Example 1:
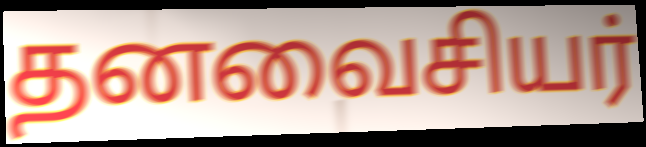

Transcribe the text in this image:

தனவைசியர்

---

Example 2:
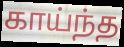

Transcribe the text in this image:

காய்ந்த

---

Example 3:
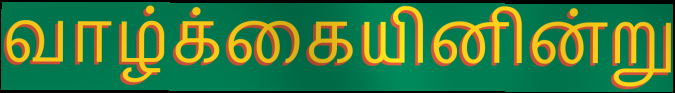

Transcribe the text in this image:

வாழ்க்கையினின்று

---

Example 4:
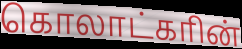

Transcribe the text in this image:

கொலாட்கரின்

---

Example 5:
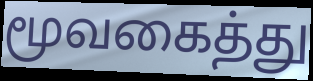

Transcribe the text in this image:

மூவகைத்து